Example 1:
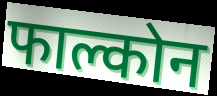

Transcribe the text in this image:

फाल्कोन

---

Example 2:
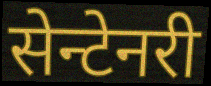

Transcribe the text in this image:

सेन्टेनरी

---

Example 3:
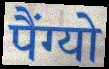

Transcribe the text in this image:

पैंग्यो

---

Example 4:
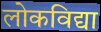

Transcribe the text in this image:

लोकविद्या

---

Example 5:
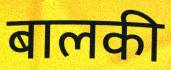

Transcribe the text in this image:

बालकी